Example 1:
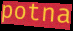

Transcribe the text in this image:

potna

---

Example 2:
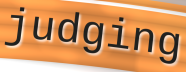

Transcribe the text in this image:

judging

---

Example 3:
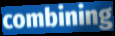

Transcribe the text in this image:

combining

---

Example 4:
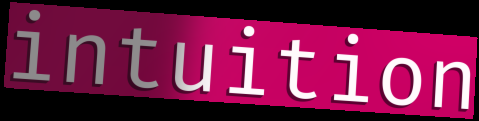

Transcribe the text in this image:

intuition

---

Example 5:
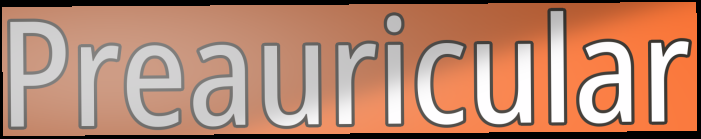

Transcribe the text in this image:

Preauricular